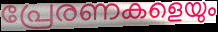
പ്രേരണകളെയും